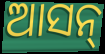
ଆସନ୍